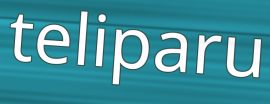
teliparu